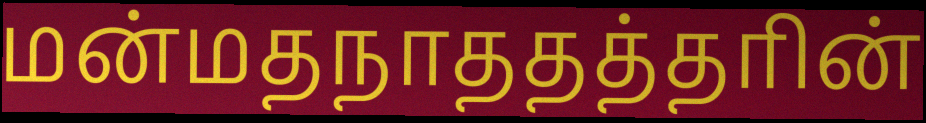
மன்மதநாததத்தரின்